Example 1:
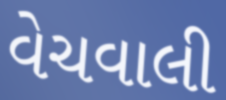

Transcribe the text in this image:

વેચવાલી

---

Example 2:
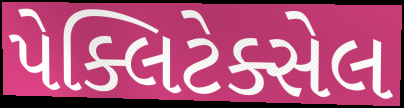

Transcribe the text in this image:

પેક્લિટેક્સેલ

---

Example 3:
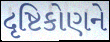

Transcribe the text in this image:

દૃષ્ટિકોણને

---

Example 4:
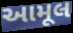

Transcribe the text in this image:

આમૂલ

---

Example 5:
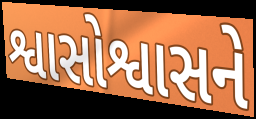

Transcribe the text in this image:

શ્વાસોશ્વાસને